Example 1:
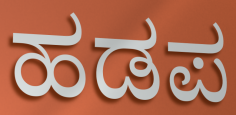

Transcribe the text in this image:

ಹಡಪ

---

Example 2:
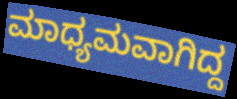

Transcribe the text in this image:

ಮಾಧ್ಯಮವಾಗಿದ್ದ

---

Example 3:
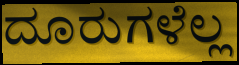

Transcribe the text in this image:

ದೂರುಗಳೆಲ್ಲ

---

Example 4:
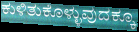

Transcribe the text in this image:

ಕುಳಿತುಕೊಳ್ಳುವುದಕ್ಕೂ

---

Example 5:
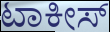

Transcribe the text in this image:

ಟಾಕೀಸ್